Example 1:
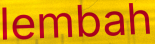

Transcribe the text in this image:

lembah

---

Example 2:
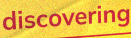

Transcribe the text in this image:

discovering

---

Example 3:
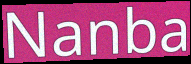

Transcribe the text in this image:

Nanba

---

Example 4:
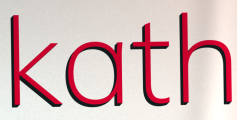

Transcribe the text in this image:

kath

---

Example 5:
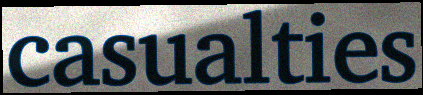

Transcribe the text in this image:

casualties